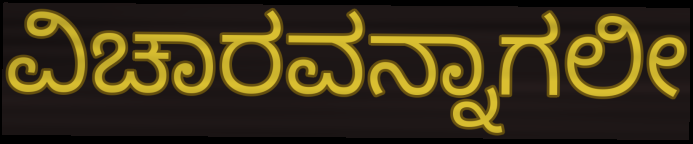
ವಿಚಾರವನ್ನಾಗಲೀ